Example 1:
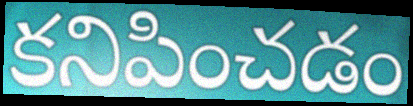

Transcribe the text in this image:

కనిపించడం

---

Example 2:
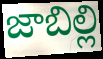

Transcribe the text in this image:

జాబిల్లి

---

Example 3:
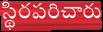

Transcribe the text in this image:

స్థిరపరిచారు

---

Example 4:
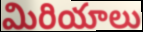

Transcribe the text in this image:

మిరియాలు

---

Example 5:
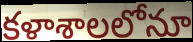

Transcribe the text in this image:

కళాశాలలోనూ